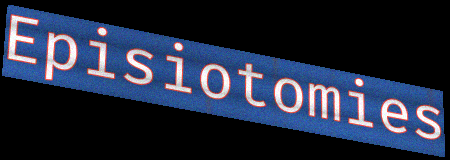
Episiotomies